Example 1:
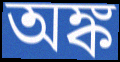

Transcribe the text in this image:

অঙ্ক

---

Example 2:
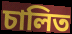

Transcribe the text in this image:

চালিত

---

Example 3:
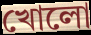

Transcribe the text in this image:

খোলো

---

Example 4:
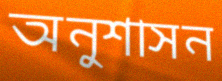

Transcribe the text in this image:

অনুশাসন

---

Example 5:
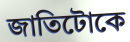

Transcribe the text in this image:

জাতিটোকে